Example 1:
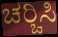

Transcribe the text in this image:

ಚರ‍್ಚಿಸಿ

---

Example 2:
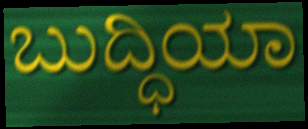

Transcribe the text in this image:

ಬುದ್ಧಿಯಾ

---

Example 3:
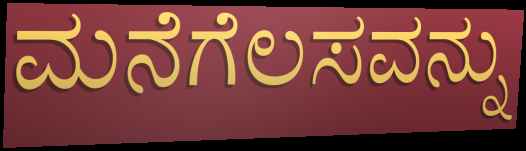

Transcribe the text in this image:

ಮನೆಗೆಲಸವನ್ನು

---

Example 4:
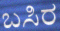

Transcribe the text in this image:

ಬಸಿರ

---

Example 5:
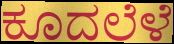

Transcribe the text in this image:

ಕೂದಲೆಳೆ